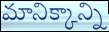
మానిక్కాన్ని